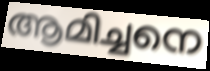
ആമിച്ചനെ